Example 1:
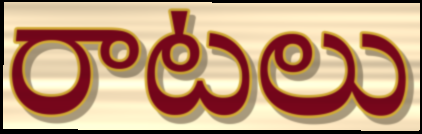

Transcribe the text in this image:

రాటలు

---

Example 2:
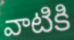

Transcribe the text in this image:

వాటికి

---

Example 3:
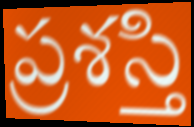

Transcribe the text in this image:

ప్రశస్తి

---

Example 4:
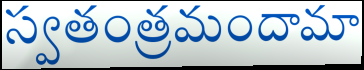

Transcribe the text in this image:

స్వతంత్రమందామా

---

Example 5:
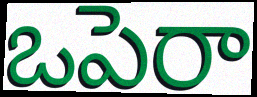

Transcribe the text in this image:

ఒపెరా